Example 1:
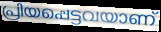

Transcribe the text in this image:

പ്രിയപ്പെട്ടവയാണ്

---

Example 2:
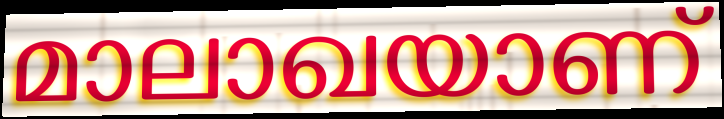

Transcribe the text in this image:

മാലാഖയാണ്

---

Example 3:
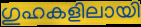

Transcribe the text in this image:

ഗുഹകളിലായി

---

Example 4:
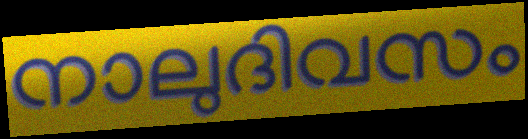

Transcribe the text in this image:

നാലുദിവസം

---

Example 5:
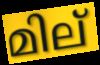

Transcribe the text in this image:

മില്